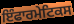
ਇੰਫਾਰਮੇਟਿਕਸ